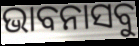
ଭାବନାସବୁ